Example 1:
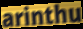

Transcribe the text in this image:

arinthu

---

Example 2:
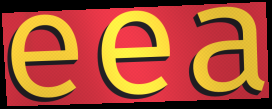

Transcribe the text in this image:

eea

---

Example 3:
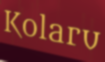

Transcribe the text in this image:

Kolaru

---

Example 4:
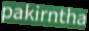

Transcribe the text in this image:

pakirntha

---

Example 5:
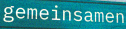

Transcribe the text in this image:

gemeinsamen